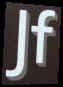
Jf